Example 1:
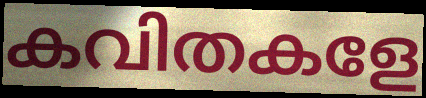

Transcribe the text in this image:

കവിതകളേ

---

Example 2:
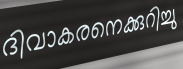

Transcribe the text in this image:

ദിവാകരനെക്കുറിച്ചു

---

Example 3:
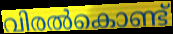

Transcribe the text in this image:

വിരൽകൊണ്ട്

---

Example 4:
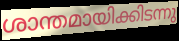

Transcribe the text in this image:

ശാന്തമായിക്കിടന്നു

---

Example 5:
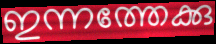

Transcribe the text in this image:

ഇന്നത്തേക്കു